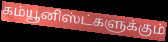
கம்யூனிஸ்ட்களுக்கும்